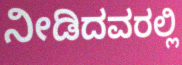
ನೀಡಿದವರಲ್ಲಿ